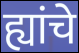
ह्यांचे